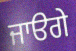
ਜਾੳਗੇ